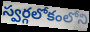
స్వర్గలోకంలోని